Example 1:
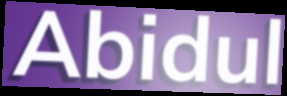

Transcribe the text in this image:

Abidul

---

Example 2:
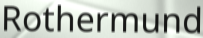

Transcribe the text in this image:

Rothermund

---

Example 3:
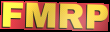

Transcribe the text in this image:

FMRP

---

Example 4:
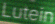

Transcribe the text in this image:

Lutein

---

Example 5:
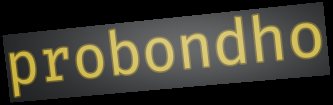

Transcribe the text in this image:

probondho